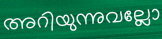
അറിയുന്നുവല്ലോ